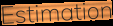
Estimation